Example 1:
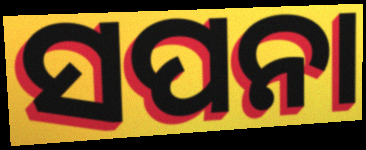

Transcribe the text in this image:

ସପନା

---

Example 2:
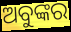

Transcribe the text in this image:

ଅବୁଙ୍କର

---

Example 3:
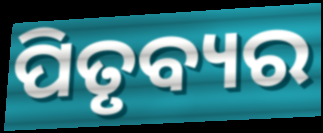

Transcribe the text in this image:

ପିତୃବ୍ୟର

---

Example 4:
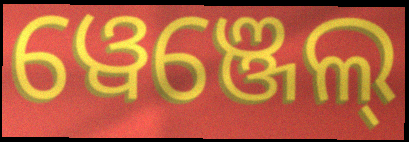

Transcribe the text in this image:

ୱେଞ୍ଜେଲ୍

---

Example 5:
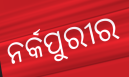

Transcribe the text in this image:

ନର୍କପୁରୀର